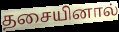
தசையினால்